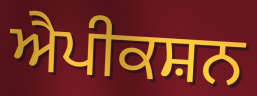
ਐਪੀਕਸ਼ਨ